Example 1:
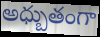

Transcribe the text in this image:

అధ్బుతంగా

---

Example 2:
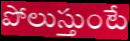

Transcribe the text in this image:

పోలుస్తుంటే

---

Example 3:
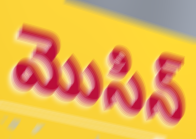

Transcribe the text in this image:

మొసిన్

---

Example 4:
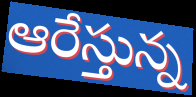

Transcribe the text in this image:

ఆరేస్తున్న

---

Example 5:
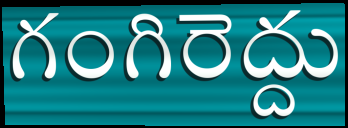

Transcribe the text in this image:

గంగిరెద్దు